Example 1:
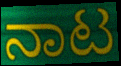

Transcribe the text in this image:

ನಾಟ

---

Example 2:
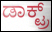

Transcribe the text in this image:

ಡಾಕ್ಟ್ರ್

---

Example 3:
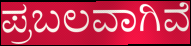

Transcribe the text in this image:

ಪ್ರಬಲವಾಗಿವೆ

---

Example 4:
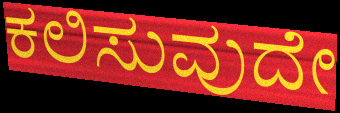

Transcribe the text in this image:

ಕಲಿಸುವುದೇ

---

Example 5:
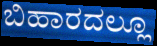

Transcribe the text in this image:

ಬಿಹಾರದಲ್ಲೂ